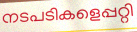
നടപടികളെപ്പറ്റി